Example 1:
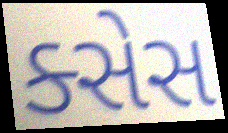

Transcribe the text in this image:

ક્સેસ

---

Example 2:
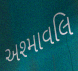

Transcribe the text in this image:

અશ્માવલિ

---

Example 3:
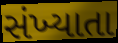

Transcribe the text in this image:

સંખ્યાતા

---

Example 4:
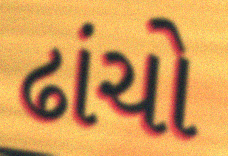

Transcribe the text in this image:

ઢાંચો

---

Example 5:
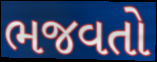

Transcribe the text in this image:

ભજવતો